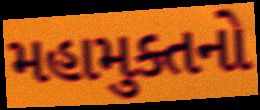
મહામુક્તનો